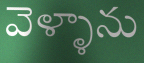
వెళ్ళాను